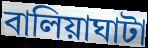
বালিয়াঘাটা